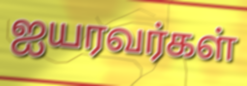
ஐயரவர்கள்